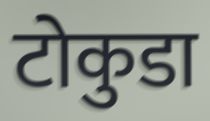
टोकुडा